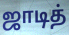
ஜாடித்